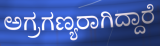
ಅಗ್ರಗಣ್ಯರಾಗಿದ್ದಾರೆ